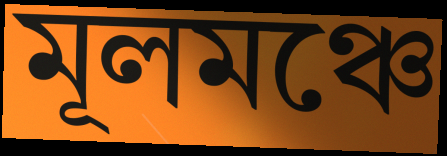
মূলমঞ্চে